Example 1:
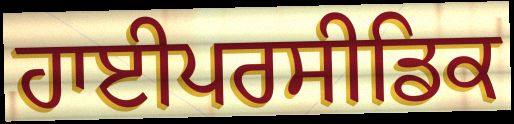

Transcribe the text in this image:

ਹਾਈਪਰਸੀਡਿਕ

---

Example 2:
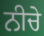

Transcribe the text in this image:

ਨੀਚੇ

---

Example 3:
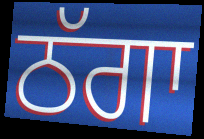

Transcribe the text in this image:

ਠੱਗਾ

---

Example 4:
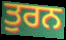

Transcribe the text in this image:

ਤੁਰਨ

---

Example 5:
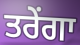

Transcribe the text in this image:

ਤਰੇਂਗਾ